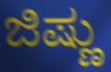
ಜಿಷ್ಣು